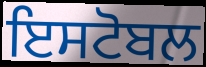
ਇਸਟੋਬਲ